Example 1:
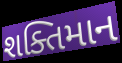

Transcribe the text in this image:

શક્તિમાન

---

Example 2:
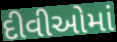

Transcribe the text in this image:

દીવીઓમાં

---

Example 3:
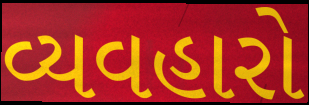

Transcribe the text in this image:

વ્યવહારો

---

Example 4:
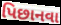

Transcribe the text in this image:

પિછાનવા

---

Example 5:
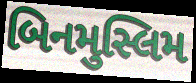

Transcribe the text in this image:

બિનમુસ્લિમ